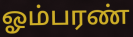
ஓம்பரண்